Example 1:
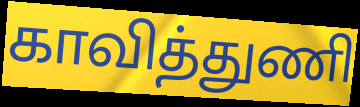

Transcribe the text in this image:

காவித்துணி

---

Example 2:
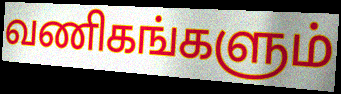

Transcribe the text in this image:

வணிகங்களும்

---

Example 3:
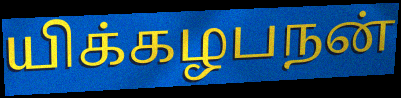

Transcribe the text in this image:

யிக்கழபநன்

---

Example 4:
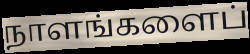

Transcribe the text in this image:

நாளங்களைப்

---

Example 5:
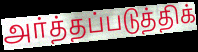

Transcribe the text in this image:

அர்த்தப்படுத்திக்